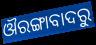
ଔରଙ୍ଗାବାଦରୁ